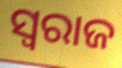
ସ୍ବରାଜ